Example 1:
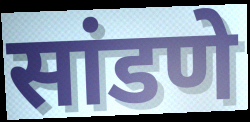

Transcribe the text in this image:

सांडणे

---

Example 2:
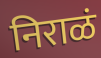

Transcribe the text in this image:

निराळं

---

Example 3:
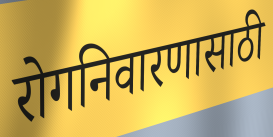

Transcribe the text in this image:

रोगनिवारणासाठी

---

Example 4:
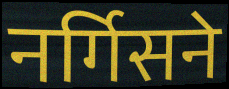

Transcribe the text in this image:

नर्गिसने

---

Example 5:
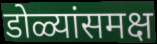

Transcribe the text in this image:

डोळ्यांसमक्ष